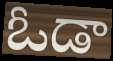
ఓడా